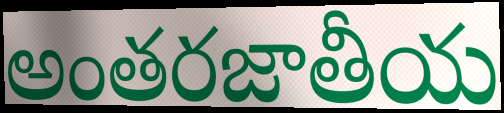
అంతరజాతీయ